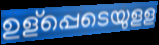
ഉള്പ്പെടെയുളള